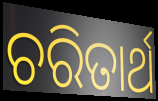
ଚରିତାର୍ଥ